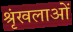
श्रृंखलाओं